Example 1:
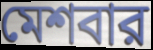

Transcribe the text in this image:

মেশবার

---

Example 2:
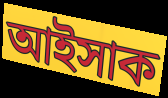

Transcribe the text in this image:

আইসাক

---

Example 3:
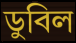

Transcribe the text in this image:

ডুবিল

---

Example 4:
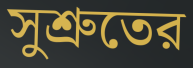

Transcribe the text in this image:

সুশ্রুতের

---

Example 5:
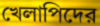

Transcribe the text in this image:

খেলাপিদের